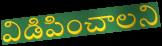
విడిపించాలని